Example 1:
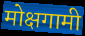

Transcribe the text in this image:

मोक्षगामी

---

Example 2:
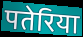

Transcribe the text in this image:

पतेरिया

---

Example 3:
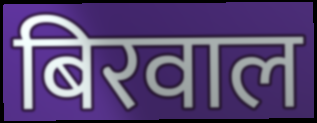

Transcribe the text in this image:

बिरवाल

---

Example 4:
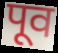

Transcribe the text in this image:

पूव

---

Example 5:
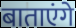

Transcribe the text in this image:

बाताएंगे